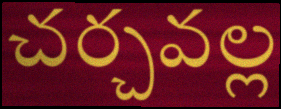
చర్చవల్ల